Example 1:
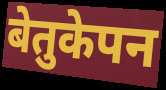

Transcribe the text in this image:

बेतुकेपन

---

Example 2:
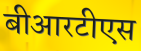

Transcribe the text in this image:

बीआरटीएस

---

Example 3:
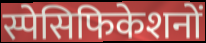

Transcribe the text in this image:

स्पेसिफिकेशनों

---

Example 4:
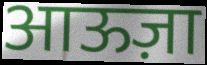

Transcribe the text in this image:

आऊज़ा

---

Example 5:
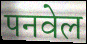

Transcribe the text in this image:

पनवेल